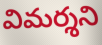
విమర్శని